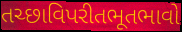
તચ્છાવિપરીતભૂતભાવો